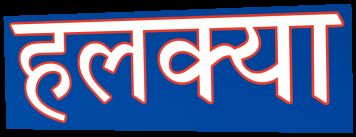
हलक्या